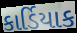
કાર્ડિયાક